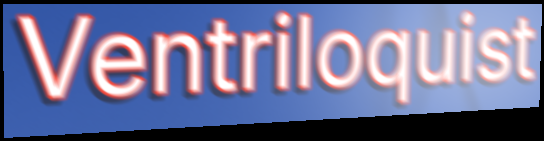
Ventriloquist